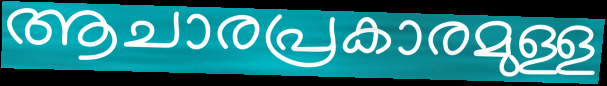
ആചാരപ്രകാരമുള്ള